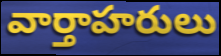
వార్తాహరులు